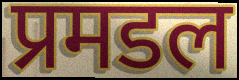
प्रमडल